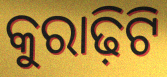
କୁରାଢ଼ିଟି